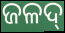
ଜଳଦ୍